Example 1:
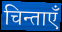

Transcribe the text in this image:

चिन्ताएँ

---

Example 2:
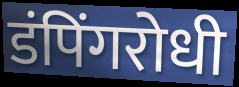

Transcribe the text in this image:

डंपिंगरोधी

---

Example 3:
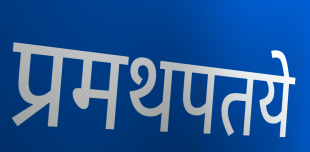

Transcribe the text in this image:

प्रमथपतये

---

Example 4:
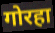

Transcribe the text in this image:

गोरहा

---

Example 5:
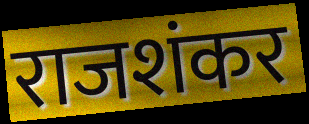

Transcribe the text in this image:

राजशंकर